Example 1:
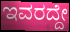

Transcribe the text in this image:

ಇವರದ್ದೇ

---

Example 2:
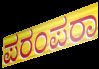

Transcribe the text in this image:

ಪರಂಪರಾ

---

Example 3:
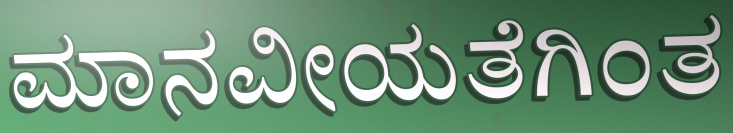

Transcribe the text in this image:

ಮಾನವೀಯತೆಗಿಂತ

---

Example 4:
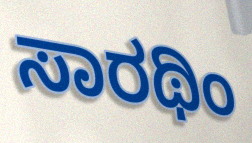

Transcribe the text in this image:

ಸಾರಥಿಂ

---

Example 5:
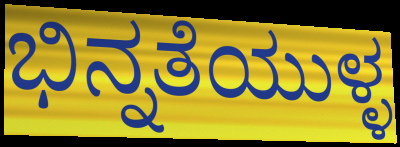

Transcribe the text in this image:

ಭಿನ್ನತೆಯುಳ್ಳ